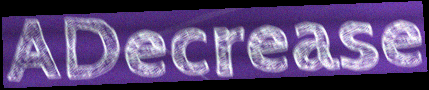
ADecrease